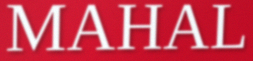
MAHAL